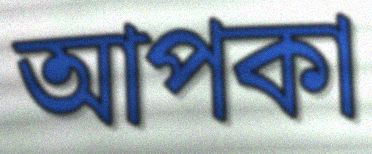
আপকা